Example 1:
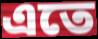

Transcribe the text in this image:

এতে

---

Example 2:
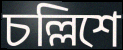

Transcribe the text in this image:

চল্লিশে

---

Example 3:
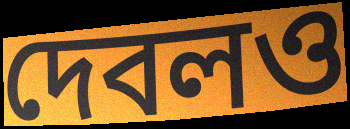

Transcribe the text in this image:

দেবলও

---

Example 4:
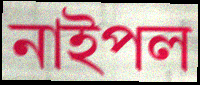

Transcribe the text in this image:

নাইপল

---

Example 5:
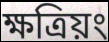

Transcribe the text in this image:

ক্ষত্রিয়ং